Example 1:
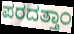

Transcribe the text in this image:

ಪರದತ್ತಾಂ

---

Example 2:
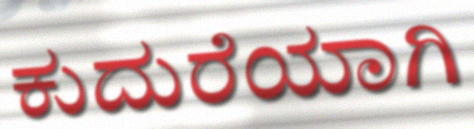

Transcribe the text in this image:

ಕುದುರೆಯಾಗಿ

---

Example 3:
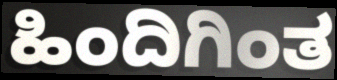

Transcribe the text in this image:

ಹಿಂದಿಗಿಂತ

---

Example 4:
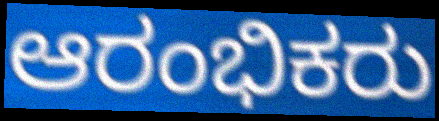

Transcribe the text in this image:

ಆರಂಭಿಕರು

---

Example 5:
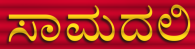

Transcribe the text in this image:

ಸಾಮದಲಿ